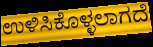
ಉಳಿಸಿಕೊಳ್ಳಲಾಗದೆ